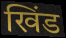
खिंड